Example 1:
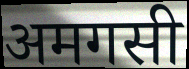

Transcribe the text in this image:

अमगसी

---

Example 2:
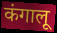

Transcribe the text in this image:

कंगालू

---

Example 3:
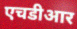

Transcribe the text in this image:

एचडीआर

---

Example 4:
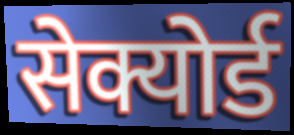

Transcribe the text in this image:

सेक्योर्ड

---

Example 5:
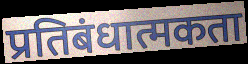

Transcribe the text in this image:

प्रतिबंधात्मकता